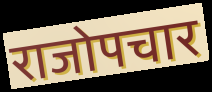
राजोपचार